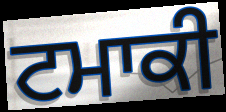
ਟਮਾਕੀ